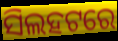
ସିଲହଟରେ